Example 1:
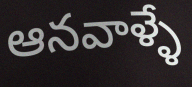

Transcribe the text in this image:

ఆనవాళ్ళే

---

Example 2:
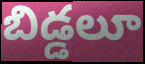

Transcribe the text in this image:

బిడ్డలూ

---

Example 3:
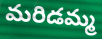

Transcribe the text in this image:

మరిడమ్మ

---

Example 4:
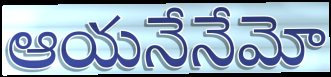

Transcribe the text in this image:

ఆయనేనేమో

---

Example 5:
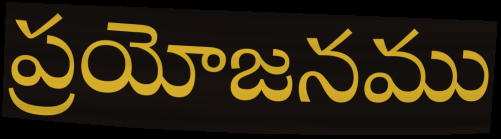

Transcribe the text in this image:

ప్రయోజనము